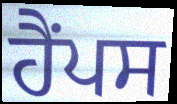
ਹੈਂਪਸ